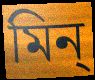
মিন্